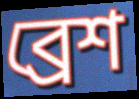
ব্রেশ